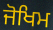
ਜੋਖਿਮ